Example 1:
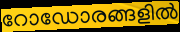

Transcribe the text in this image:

റോഡോരങ്ങളിൽ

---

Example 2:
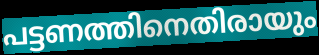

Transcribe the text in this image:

പട്ടണത്തിനെതിരായും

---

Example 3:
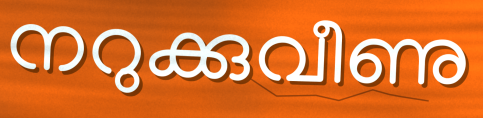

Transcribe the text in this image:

നറുക്കുവീണു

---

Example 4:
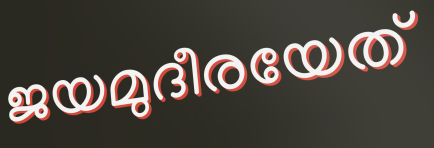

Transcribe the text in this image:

ജയമുദീരയേത്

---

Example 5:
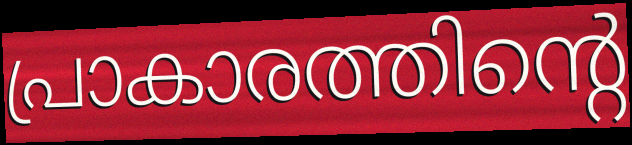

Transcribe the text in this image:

പ്രാകാരത്തിന്റെ